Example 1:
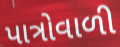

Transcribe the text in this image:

પાત્રોવાળી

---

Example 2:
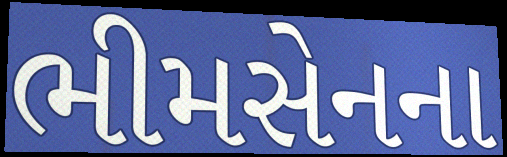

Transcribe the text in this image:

ભીમસેનના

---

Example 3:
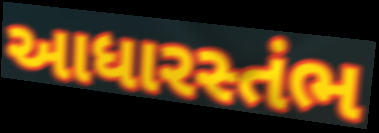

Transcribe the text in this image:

આધારસ્તંભ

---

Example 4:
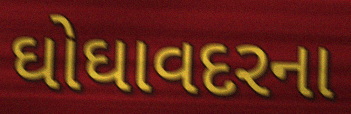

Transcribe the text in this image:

ઘોઘાવદરના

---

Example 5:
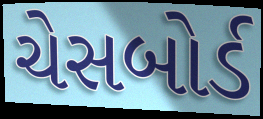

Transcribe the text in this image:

ચેસબોર્ડ